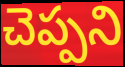
చెప్పని